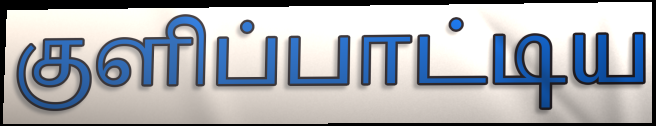
குளிப்பாட்டிய